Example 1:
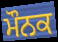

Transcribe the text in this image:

ਮੌਨਕ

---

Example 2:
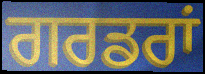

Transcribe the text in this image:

ਗਰਡਰਾਂ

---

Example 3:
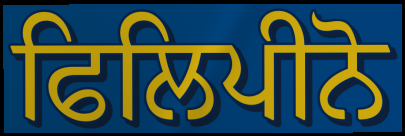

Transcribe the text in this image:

ਫਿਲਿਪੀਨੋ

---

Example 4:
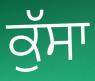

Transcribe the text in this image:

ਕੁੱਸਾ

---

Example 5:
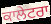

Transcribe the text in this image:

ਕਾਲੇਟਰਾ